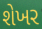
શેખર